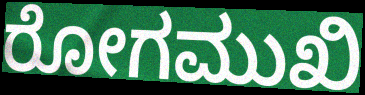
ರೋಗಮುಖಿ